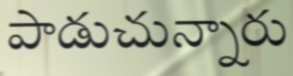
పాడుచున్నారు